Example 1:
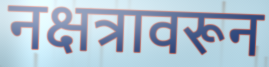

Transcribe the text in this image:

नक्षत्रावरून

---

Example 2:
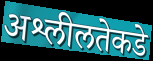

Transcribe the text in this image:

अश्लीलतेकडे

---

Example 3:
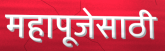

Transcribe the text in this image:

महापूजेसाठी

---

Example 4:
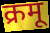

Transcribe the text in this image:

क्रमू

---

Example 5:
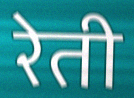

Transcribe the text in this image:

रेती